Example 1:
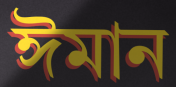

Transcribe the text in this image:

ঈমান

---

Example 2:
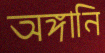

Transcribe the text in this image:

অঙ্গানি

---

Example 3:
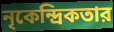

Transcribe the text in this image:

নৃকেন্দ্রিকতার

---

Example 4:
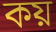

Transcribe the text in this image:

কয়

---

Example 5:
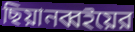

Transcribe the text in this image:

ছিয়ানব্বইয়ের